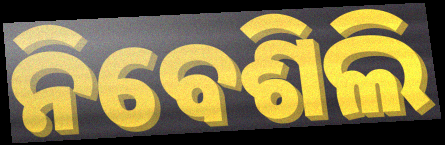
ନିବେଶିଲି